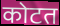
कोटत